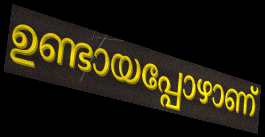
ഉണ്ടായപ്പോഴാണ്